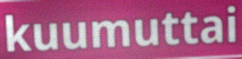
kuumuttai